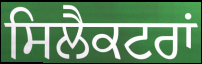
ਸਿਲੈਕਟਰਾਂ